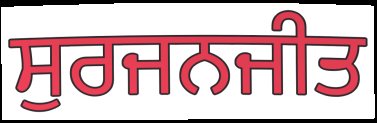
ਸੁਰਜਨਜੀਤ